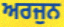
ਅਰਜੁਨ